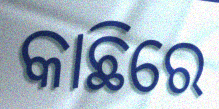
କାଛିରେ